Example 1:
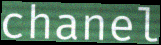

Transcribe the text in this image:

chanel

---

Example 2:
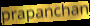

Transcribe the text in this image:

prapanchan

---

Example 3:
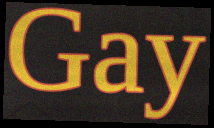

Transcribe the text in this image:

Gay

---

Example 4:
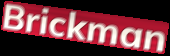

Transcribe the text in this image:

Brickman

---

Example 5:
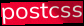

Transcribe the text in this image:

postcss